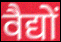
वैद्यों